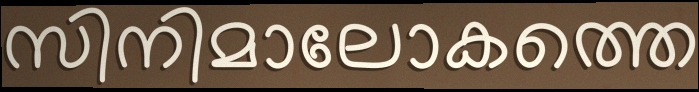
സിനിമാലോകത്തെ